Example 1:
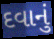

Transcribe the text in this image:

દવાનું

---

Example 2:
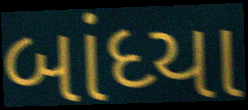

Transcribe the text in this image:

બાંધ્યા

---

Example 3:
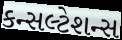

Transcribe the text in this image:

કન્સલ્ટેશન્સ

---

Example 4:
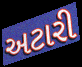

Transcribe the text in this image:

અટારી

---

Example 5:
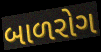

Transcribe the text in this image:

બાળરોગ